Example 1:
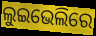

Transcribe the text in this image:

ଲୁଇଭେଲିରେ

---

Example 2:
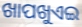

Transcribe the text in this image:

ଖାପଖୁଏଇ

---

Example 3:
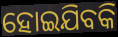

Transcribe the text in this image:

ହୋଇଯିବକି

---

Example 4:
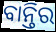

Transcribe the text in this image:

ବାନ୍ତିର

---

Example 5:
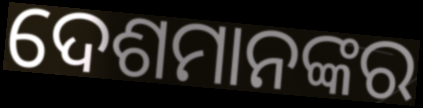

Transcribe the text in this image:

ଦେଶମାନଙ୍କର